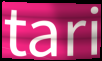
tari